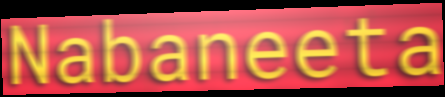
Nabaneeta